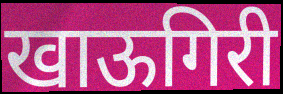
खाऊगिरी